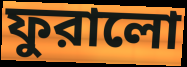
ফুরালো